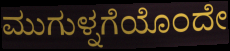
ಮುಗುಳ್ನಗೆಯೊಂದೇ